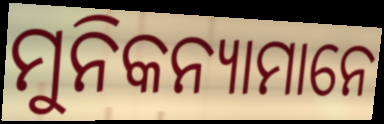
ମୁନିକନ୍ୟାମାନେ